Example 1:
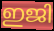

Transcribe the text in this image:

ഇജി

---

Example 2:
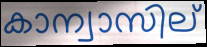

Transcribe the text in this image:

കാന്വാസില്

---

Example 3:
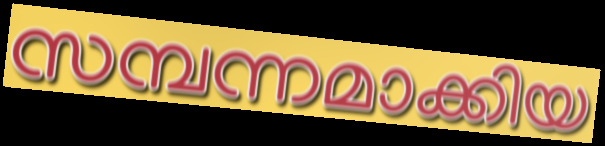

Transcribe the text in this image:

സമ്പന്നമാക്കിയ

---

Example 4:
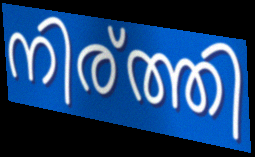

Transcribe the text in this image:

നിര്ത്തി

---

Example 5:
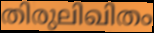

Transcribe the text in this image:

തിരുലിഖിതം